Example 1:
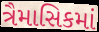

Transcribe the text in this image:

ત્રૈમાસિકમાં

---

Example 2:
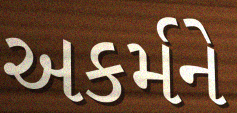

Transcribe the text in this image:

અકર્મને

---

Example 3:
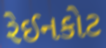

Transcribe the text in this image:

રેઈનકોટ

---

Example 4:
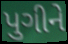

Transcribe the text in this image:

પુગીને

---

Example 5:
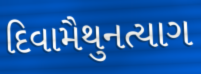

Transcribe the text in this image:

દિવામૈથુનત્યાગ